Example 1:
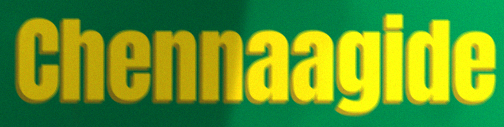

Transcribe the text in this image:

Chennaagide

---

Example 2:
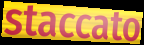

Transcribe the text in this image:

staccato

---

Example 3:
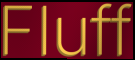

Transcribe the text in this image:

Fluff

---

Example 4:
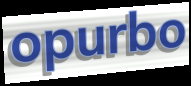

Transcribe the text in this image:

opurbo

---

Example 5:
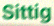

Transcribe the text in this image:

Sittig